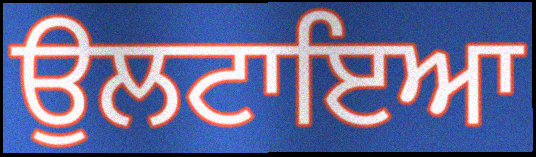
ਉਲਟਾਇਆ